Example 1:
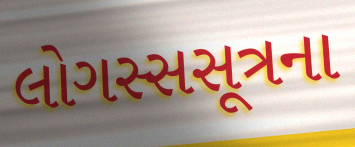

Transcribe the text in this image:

લોગસ્સસૂત્રના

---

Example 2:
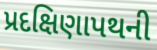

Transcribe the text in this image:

પ્રદક્ષિણાપથની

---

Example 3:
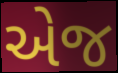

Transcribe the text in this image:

એજ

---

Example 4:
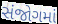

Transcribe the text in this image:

સંજોગમાં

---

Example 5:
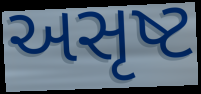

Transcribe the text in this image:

અસૃષ્ટ